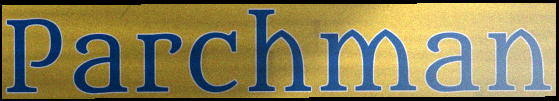
Parchman